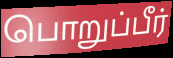
பொறுப்பீர்